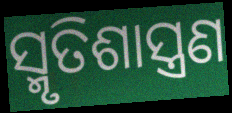
ସ୍ମୃତିଶାସ୍ତ୍ରଣ